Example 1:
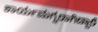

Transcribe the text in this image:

ಕಾರ್ಯಮಗ್ನರಾಗಿದ್ದಾರೆ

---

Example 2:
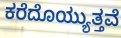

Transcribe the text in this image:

ಕರೆದೊಯ್ಯುತ್ತವೆ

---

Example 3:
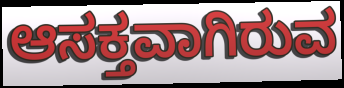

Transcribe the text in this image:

ಆಸಕ್ತವಾಗಿರುವ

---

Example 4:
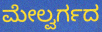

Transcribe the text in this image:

ಮೇಲ್ವರ್ಗದ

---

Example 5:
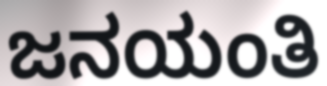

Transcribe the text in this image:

ಜನಯಂತಿ